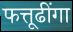
फत्तूढींगा